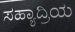
ಸಹ್ಯಾದ್ರಿಯ